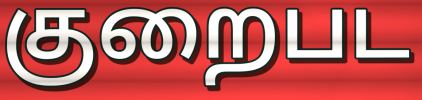
குறைபட